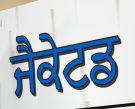
ਜੈਕੇਟਡ